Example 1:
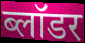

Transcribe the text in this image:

ब्लॉडर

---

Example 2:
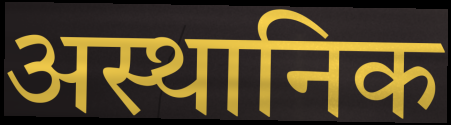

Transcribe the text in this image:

अस्थानिक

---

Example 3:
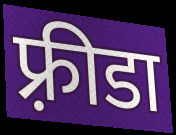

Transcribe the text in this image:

फ़्रीडा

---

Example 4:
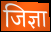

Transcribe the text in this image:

जिज्ञा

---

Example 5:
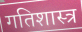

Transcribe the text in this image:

गतिशास्त्र